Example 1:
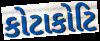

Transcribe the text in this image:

કોટાકોટિ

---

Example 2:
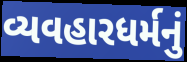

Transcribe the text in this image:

વ્યવહારધર્મનું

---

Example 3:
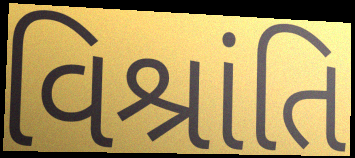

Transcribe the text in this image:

વિશ્રાંતિ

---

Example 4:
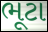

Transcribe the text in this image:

ભૂટા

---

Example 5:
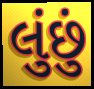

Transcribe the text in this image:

લુંછું